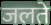
जलते